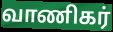
வாணிகர்